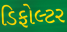
ડિફોલ્ટર